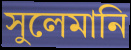
সুলেমানি